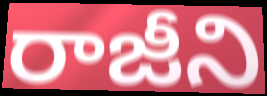
రాజీని